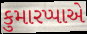
કુમારપ્પાએ